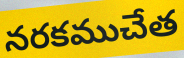
నరకముచేత